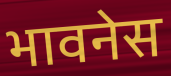
भावनेस